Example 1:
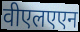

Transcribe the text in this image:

वीएलएएन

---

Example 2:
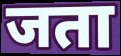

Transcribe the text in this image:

जता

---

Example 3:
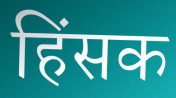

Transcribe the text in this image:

हिंसक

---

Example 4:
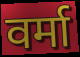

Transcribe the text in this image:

वर्मा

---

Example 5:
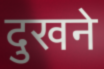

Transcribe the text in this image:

दुखने